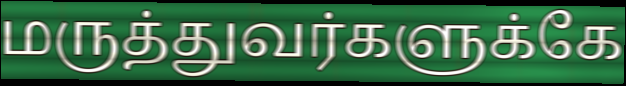
மருத்துவர்களுக்கே